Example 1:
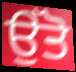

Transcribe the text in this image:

ਉੱਤੋ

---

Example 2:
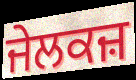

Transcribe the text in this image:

ਜੇਲਕਜ਼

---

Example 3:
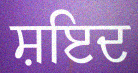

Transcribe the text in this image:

ਸ਼ਇਦ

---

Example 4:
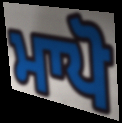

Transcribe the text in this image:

ਮਾਪੋ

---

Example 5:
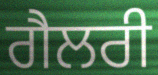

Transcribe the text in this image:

ਗੈਲਰੀ